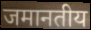
जमानतीय